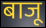
बाजू